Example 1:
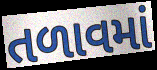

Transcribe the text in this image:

તળાવમાં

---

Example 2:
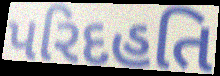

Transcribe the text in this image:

પરિદહતિ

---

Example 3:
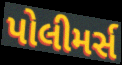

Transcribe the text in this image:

પોલીમર્સ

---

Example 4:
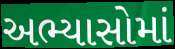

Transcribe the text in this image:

અભ્યાસોમાં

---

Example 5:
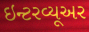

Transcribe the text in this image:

ઇન્ટરવ્યૂઅર